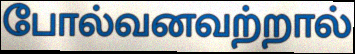
போல்வனவற்றால்